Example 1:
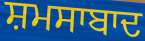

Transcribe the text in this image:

ਸ਼ਮਸਾਬਾਦ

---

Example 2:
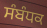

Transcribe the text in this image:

ਸੰਬੰਧਕ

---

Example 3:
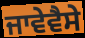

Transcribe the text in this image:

ਜਾਵੇਵੈਸੇ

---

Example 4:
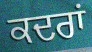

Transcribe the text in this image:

ਕਦਰਾਂ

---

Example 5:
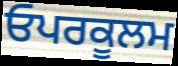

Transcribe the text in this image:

ਓਪਰਕੂਲਮ